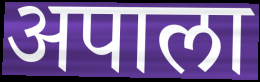
अपाला